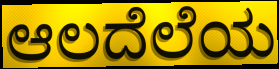
ಆಲದೆಲೆಯ